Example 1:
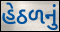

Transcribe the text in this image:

હેઠળનું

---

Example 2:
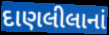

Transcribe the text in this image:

દાણલીલાનાં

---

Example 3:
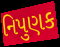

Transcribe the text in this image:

નિપુણક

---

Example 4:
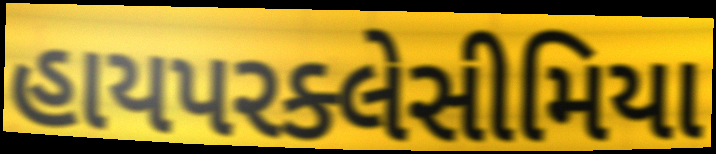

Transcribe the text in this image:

હાયપરક્લેસીમિયા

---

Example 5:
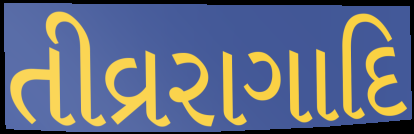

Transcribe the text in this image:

તીવ્રરાગાદિ